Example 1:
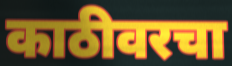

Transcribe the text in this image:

काठीवरचा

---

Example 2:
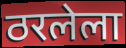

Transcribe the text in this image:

ठरलेला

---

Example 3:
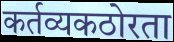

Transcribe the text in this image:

कर्तव्यकठोरता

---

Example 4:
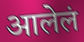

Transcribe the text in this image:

आलेलं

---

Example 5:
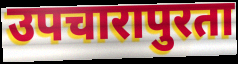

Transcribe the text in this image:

उपचारापुरता